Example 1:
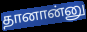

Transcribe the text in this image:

தானான்னு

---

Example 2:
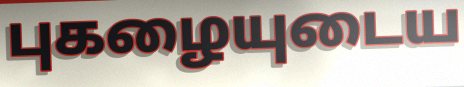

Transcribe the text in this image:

புகழையுடைய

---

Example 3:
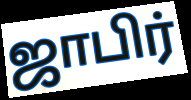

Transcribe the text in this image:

ஜாபிர்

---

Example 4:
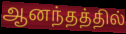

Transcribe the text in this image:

ஆனந்தத்தில்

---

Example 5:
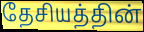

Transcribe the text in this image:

தேசியத்தின்